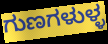
ಗುಣಗಳುಳ್ಳ